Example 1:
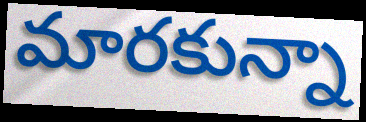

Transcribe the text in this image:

మారకున్నా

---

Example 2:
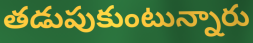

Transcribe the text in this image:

తడుపుకుంటున్నారు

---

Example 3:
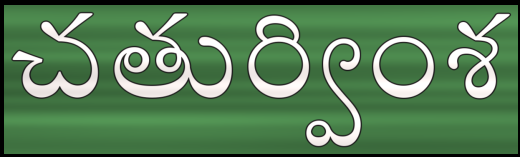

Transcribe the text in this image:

చతుర్వింశ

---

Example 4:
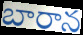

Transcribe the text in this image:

బారాన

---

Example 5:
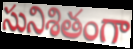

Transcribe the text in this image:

సునిశితంగా